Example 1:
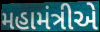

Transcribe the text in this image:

મહામંત્રીએ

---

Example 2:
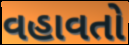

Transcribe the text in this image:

વહાવતો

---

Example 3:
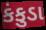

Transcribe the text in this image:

કંકુડા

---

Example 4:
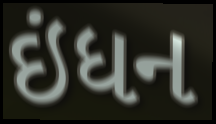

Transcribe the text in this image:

ઇંધન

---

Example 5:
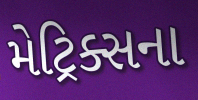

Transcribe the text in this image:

મેટ્રિક્સના